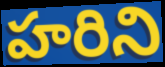
హరిని